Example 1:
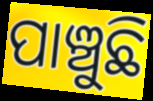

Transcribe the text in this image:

ପାଞ୍ଚୁଛି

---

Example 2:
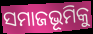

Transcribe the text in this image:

ସମାଜଭୂମିକୁ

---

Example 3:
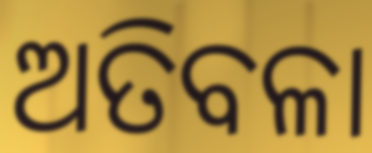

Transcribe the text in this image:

ଅତିବଳା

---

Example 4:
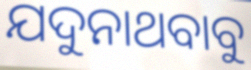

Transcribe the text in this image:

ଯଦୁନାଥବାବୁ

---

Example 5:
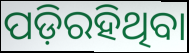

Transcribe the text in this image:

ପଡ଼ିରହିଥିବା